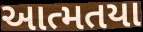
આત્મતયા